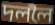
দললৈ